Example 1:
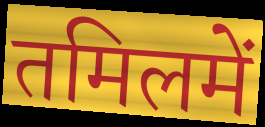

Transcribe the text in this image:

तमिलमें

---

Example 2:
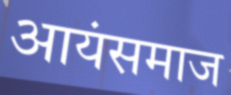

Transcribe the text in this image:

आयंसमाज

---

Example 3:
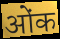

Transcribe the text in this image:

ओंक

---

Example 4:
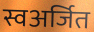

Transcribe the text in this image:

स्वअर्जित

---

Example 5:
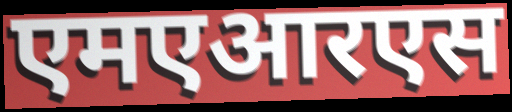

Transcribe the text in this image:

एमएआरएस